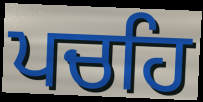
ਪਚਹਿ